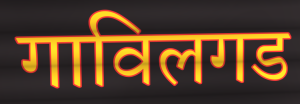
गाविलगड